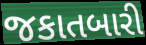
જકાતબારી